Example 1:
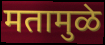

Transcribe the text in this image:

मतामुळे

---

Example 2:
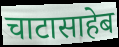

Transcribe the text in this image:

चाटासाहेब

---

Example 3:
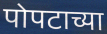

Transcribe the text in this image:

पोपटाच्या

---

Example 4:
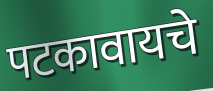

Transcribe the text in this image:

पटकावायचे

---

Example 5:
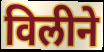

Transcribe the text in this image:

विलीने